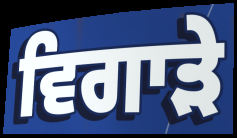
ਵਿਗਾੜੇ